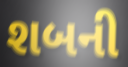
શબની